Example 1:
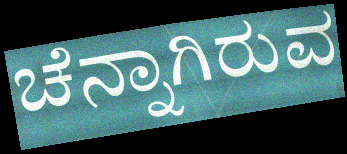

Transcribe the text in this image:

ಚೆನ್ನಾಗಿರುವ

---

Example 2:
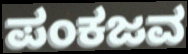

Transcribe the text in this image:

ಪಂಕಜವ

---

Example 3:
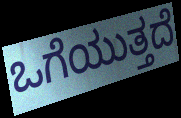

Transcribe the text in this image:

ಒಗೆಯುತ್ತದೆ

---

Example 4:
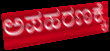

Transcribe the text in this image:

ಅಪಹರಣಕ್ಕೆ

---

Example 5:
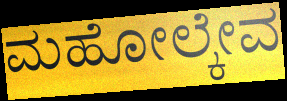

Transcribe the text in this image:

ಮಹೋಲ್ಕೇವ